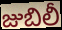
జుబిలీ